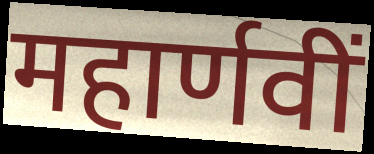
महार्णवीं